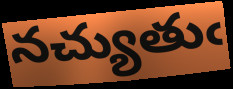
నచ్యుతుఁ